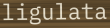
ligulata